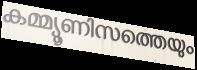
കമ്മ്യൂണിസത്തെയും